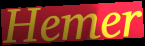
Hemer